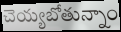
చెయ్యబోతున్నాం